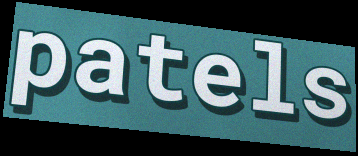
patels